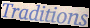
Traditions